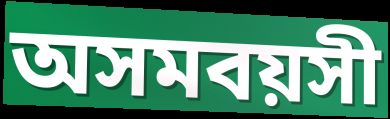
অসমবয়সী